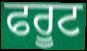
ਫਰੂਟ